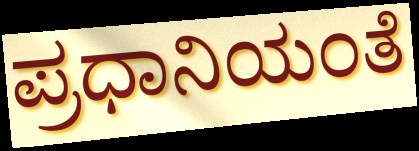
ಪ್ರಧಾನಿಯಂತೆ